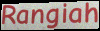
Rangiah